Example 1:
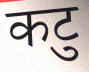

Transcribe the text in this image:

कटु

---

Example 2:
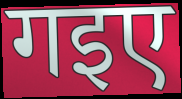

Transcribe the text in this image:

गइए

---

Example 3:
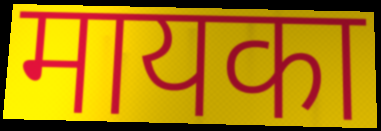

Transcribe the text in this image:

मायका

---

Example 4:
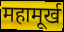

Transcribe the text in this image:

महामूर्ख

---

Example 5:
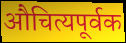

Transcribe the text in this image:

औचित्यपूर्वक